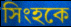
সিংহকে